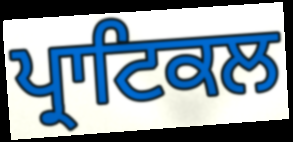
ਪ੍ਰਾਟਿਕਲ